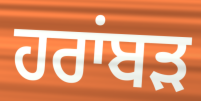
ਹਰਾਂਬੜ